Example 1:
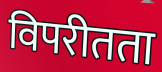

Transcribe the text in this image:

विपरीतता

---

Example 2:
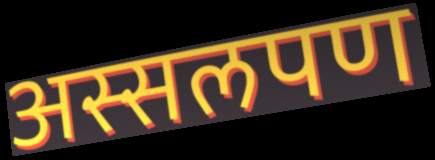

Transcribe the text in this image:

अस्सलपण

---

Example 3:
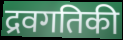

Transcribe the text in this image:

द्रवगतिकी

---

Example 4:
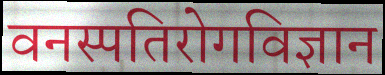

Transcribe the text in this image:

वनस्पतिरोगविज्ञान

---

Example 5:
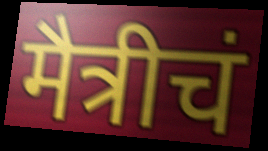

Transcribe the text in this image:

मैत्रीचं